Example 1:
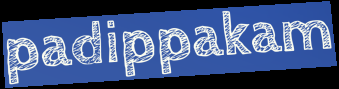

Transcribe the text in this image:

padippakam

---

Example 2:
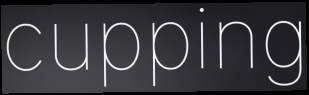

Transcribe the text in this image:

cupping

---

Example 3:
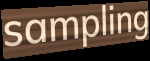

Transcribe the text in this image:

sampling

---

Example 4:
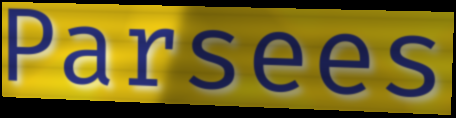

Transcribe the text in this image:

Parsees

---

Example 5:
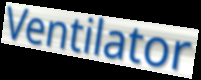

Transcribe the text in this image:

Ventilator